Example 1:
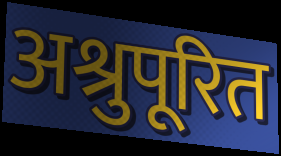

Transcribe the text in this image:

अश्रुपूरित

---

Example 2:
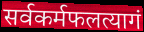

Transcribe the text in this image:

सर्वकर्मफलत्यागं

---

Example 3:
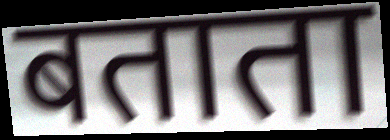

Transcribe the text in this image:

बताता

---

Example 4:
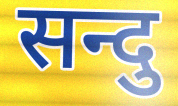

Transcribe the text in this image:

सन्दु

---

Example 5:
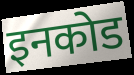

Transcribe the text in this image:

इनकोड